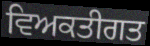
ਵਿਅਕਤੀਗਤ